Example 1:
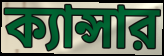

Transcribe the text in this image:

ক্যান্সার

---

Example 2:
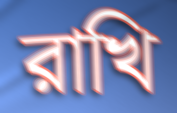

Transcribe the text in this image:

রাখি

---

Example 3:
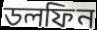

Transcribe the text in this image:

ডলফিন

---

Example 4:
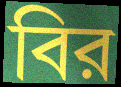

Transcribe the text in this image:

বির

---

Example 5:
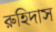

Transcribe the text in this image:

রুহিদাস